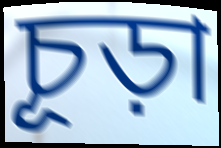
চূড়া